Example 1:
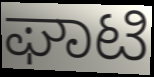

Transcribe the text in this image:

ಘಾಟಿ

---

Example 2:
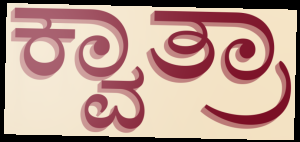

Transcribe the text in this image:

ಕ್ವಾತ್ರಾ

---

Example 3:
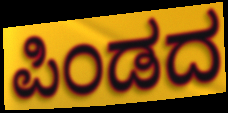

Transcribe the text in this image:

ಪಿಂಡದ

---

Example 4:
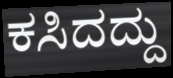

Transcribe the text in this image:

ಕಸಿದದ್ದು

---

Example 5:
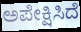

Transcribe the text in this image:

ಅಪೇಕ್ಷಿಸಿದೆ